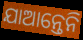
ଯାଆନ୍ତେନି